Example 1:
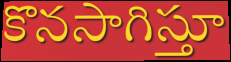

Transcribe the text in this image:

కొనసాగిస్తూ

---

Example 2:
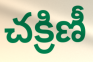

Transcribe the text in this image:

చక్రిణీ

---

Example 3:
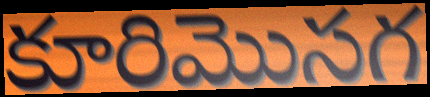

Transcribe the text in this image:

కూరిమొసగ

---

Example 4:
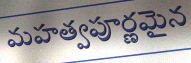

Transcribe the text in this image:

మహత్వపూర్ణమైన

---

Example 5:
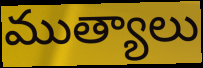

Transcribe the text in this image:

ముత్యాలు